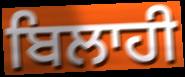
ਬਿਲਾਹੀ